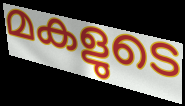
മകളുടെ